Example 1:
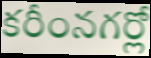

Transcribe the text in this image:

కరీంనగర్లో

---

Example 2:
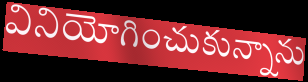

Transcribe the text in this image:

వినియోగించుకున్నాను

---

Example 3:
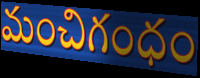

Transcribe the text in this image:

మంచిగంధం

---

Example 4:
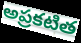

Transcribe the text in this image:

అప్రకటిత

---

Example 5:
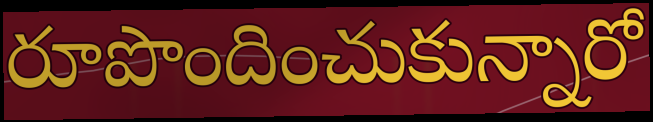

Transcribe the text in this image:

రూపొందించుకున్నారో